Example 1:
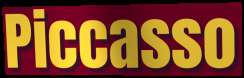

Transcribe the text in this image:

Piccasso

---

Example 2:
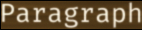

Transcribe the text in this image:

Paragraph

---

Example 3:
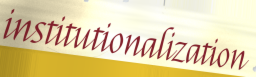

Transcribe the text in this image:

institutionalization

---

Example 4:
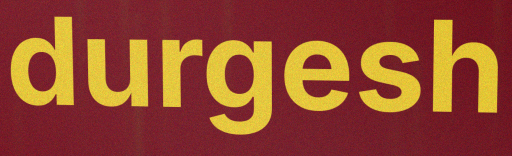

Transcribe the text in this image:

durgesh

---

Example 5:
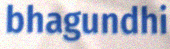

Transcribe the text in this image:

bhagundhi